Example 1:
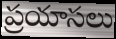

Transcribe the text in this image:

ప్రయాసలు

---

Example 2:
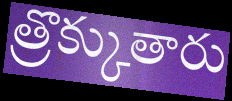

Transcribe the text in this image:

త్రొక్కుతారు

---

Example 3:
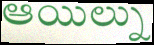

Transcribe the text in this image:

ఆయిల్ను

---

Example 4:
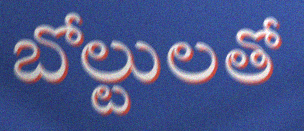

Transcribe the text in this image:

బోల్టులతో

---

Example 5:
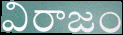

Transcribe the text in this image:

విరాజం